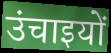
उंचाइयों